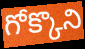
గోక్కొని